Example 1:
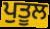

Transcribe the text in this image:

ਪੁਤੂਲ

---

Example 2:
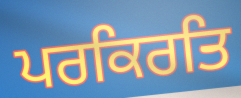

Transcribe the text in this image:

ਪਰਕਿਰਤਿ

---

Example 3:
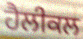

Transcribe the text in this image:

ਹੈਲੀਕਲ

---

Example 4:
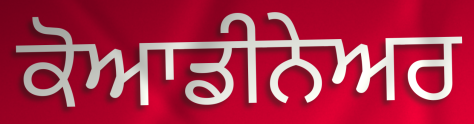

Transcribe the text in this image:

ਕੋਆਡੀਨੇਅਰ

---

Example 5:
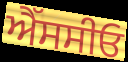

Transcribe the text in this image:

ਐੱਸਸੀਓ